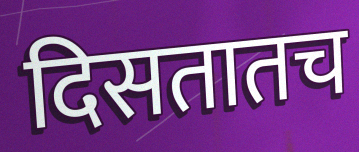
दिसतातच